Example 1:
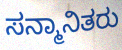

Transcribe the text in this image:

ಸನ್ಮಾನಿತರು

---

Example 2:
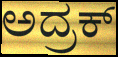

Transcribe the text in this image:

ಅದ್ರಕ್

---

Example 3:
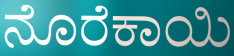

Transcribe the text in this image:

ನೊರೆಕಾಯಿ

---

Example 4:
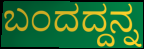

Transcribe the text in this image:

ಬಂದದ್ದನ್ನ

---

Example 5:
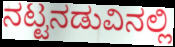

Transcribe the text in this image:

ನಟ್ಟನಡುವಿನಲ್ಲಿ